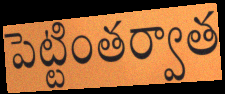
పెట్టింతర్వాత